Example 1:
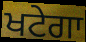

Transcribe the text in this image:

ਖਟੇਗਾ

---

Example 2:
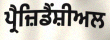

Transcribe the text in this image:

ਪ੍ਰੈਜ਼ਿਡੈਂਸ਼ੀਅਲ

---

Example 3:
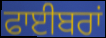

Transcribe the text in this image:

ਫਾਈਬਰਾਂ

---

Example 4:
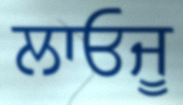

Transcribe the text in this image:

ਲਾਓਜੂ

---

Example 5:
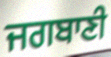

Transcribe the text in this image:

ਜਗਬਾਣੀ